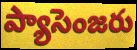
ప్యాసెంజరు